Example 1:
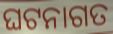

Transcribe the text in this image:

ଘଟନାଗତ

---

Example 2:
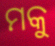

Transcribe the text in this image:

ମକୁ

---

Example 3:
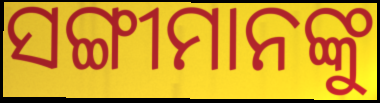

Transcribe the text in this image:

ସଙ୍ଗୀମାନଙ୍କୁ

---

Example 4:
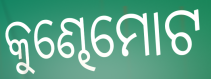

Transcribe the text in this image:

କୁଣ୍ଢେମୋଟ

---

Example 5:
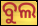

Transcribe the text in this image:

ବୁଲ